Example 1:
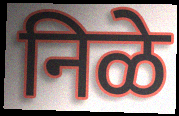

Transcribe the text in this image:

निळे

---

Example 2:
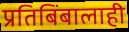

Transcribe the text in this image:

प्रतिबिंबालाही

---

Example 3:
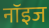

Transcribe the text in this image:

नॉइज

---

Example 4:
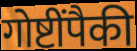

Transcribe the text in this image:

गोष्टींपैकी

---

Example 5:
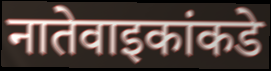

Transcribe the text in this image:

नातेवाइकांकडे